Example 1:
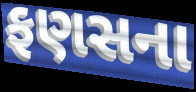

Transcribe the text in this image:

ફણસના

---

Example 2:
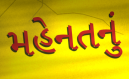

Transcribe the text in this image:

મહેનતનું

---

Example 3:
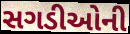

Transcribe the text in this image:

સગડીઓની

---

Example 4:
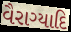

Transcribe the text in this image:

વૈરાગ્યાદિ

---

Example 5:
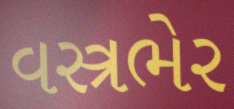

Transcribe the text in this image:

વસ્ત્રભેર